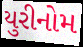
યુરીનોમ